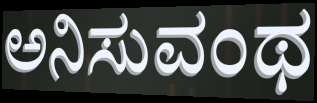
ಅನಿಸುವಂಥ